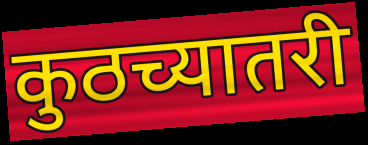
कुठच्यातरी